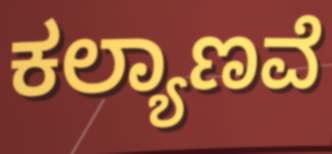
ಕಲ್ಯಾಣವೆ